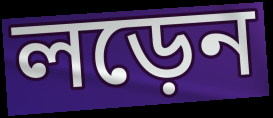
লড়েন